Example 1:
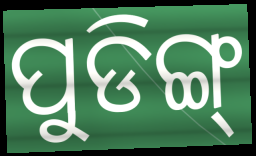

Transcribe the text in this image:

ପୁଡିଙ୍ଗ୍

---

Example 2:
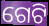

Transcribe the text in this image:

ଗେଟି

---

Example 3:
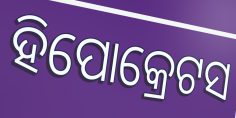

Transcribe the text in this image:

ହିପୋକ୍ରେଟସ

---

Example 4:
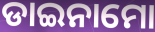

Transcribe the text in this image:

ଡାଇନାମୋ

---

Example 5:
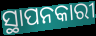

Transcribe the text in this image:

ସ୍ଥାପନକାରୀ